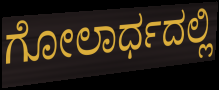
ಗೋಲಾರ್ಧದಲ್ಲಿ